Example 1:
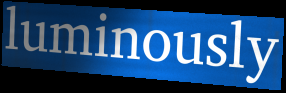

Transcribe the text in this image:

luminously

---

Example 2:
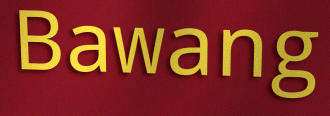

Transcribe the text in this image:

Bawang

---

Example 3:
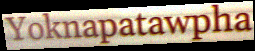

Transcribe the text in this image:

Yoknapatawpha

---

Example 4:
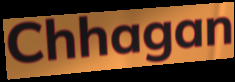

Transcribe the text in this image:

Chhagan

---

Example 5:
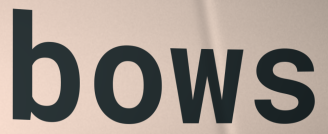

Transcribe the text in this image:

bows